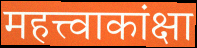
महत्त्वाकांक्षा